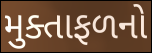
મુક્તાફળનો